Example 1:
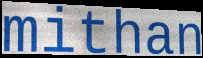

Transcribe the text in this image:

mithan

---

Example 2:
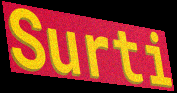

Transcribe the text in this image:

Surti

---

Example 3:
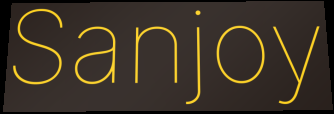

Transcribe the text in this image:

Sanjoy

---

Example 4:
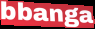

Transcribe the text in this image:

bbanga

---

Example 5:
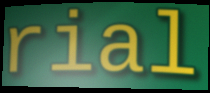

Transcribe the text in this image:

rial